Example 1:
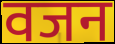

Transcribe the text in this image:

वजन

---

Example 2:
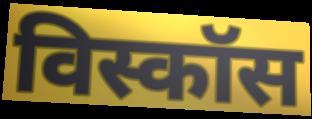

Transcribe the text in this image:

विस्कॉस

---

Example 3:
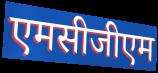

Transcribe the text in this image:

एमसीजीएम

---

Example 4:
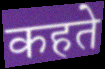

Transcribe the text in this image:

कहते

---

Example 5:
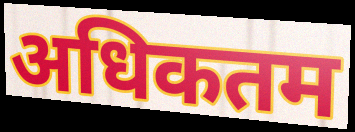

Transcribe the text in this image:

अधिकतम